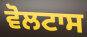
ਵੋਲਟਾਸ